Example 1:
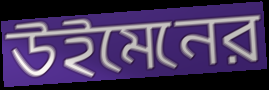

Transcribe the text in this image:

উইমেনের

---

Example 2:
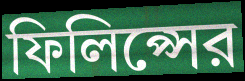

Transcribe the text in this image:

ফিলিপ্সের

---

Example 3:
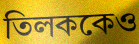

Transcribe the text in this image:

তিলককেও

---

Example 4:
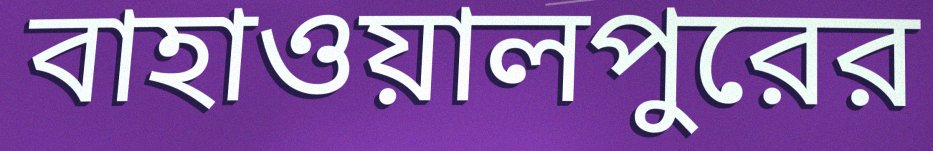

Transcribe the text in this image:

বাহাওয়ালপুরের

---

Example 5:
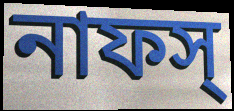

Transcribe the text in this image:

নাফস্